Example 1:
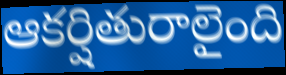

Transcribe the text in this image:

ఆకర్షితురాలైంది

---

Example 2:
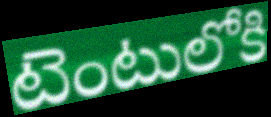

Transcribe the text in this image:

టెంటులోకి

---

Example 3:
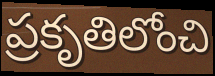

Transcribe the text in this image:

ప్రకృతిలోంచి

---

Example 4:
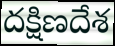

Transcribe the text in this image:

దక్షిణదేశ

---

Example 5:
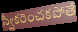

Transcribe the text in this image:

స్వీకరించకపోతే